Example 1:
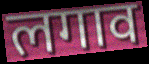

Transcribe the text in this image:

लगाव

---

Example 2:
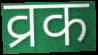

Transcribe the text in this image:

व्रक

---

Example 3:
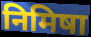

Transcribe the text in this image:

निमिषा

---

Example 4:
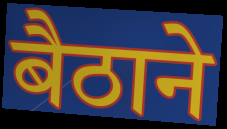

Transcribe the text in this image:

बैठाने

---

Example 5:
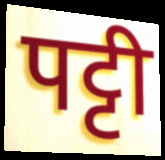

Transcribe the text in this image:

पट्टी